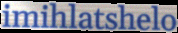
imihlatshelo